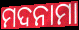
ମଦନାମା